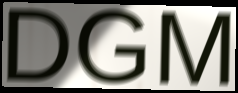
DGM